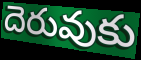
దెరువుకు